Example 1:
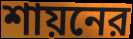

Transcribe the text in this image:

শায়নের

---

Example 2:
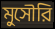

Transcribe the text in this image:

মুসৌরি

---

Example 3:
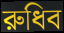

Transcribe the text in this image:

রুধিব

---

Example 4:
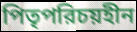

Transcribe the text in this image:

পিতৃপরিচয়হীন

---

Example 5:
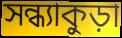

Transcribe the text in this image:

সন্ধ্যাকুড়া